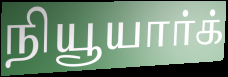
நியூயார்க்